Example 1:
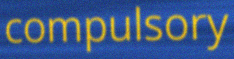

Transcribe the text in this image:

compulsory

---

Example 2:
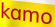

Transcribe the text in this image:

kamo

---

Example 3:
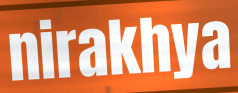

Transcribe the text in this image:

nirakhya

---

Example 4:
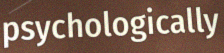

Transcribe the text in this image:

psychologically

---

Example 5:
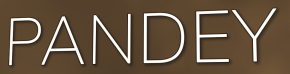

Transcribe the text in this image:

PANDEY